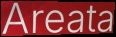
Areata